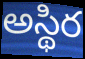
అస్థిర